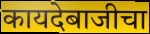
कायदेबाजीचा